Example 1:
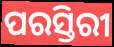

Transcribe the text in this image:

ପରସ୍ତିରୀ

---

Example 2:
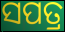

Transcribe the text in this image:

ସପତ୍ର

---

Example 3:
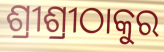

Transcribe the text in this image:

ଶ୍ରୀଶ୍ରୀଠାକୁର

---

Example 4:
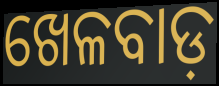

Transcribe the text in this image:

ଖେଳବାଡ଼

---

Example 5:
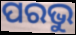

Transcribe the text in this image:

ପରଭୁ